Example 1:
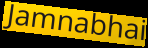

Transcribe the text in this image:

Jamnabhai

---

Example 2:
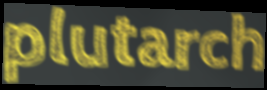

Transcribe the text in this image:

plutarch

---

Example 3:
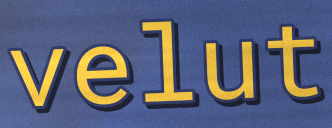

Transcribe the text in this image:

velut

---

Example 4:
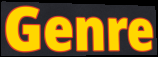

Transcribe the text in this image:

Genre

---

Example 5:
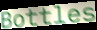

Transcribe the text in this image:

Bottles